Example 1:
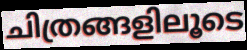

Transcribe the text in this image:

ചിത്രങ്ങളിലൂടെ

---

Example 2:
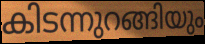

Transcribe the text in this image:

കിടന്നുറങ്ങിയും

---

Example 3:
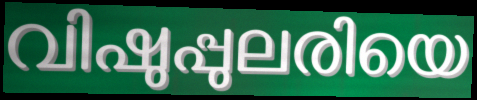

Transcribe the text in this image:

വിഷുപ്പുലരിയെ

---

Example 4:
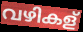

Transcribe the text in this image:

വഴികള്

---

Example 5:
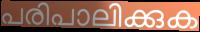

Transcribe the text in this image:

പരിപാലിക്കുക